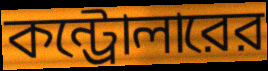
কন্ট্রোলারের